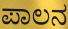
ಪಾಲನ